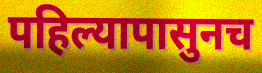
पहिल्यापासुनच